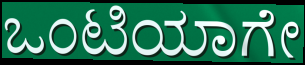
ಒಂಟಿಯಾಗೇ